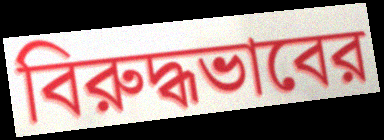
বিরুদ্ধভাবের